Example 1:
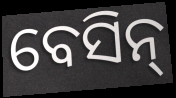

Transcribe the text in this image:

ବେସିନ୍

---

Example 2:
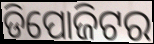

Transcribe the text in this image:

ଡିପୋଜିଟର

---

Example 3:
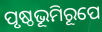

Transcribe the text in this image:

ପୃଷ୍ଠଭୂମିରୂପେ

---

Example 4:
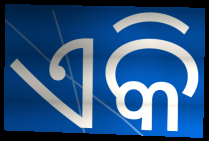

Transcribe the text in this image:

ଏକି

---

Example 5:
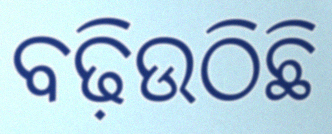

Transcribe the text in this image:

ବଢ଼ିଉଠିଛି